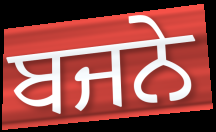
ਬਜਨੇ